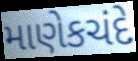
માણેકચંદે